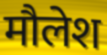
मौलेश